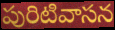
పురిటివాసన